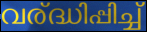
വര്ദ്ധിപ്പിച്ച്